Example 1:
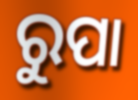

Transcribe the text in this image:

ରୁପା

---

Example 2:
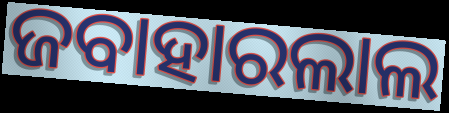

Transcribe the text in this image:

ଜବାହାରଲାଲ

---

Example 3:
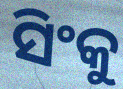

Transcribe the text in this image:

ସିଂକୁ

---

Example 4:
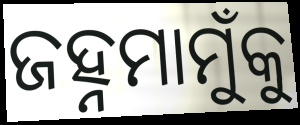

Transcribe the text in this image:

ଜହ୍ନମାମୁଁକୁ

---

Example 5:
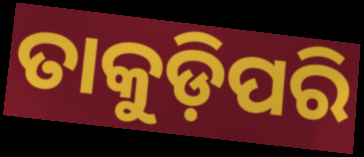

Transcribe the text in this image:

ତାକୁଡ଼ିପରି